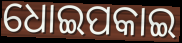
ଧୋଇପକାଇ